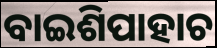
ବାଇଶିପାହାଚ